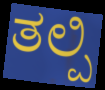
ತಲ್ಪಿ